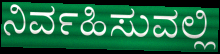
ನಿರ್ವಹಿಸುವಲ್ಲಿ